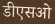
डीएसओ